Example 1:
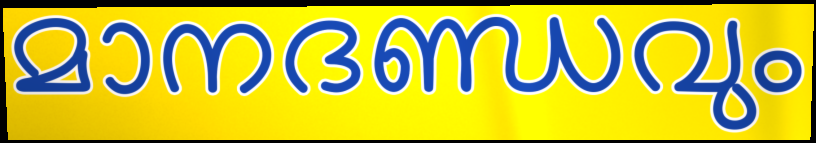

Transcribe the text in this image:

മാനദണ്ഡവും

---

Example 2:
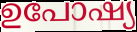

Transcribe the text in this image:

ഉപോഷ്യ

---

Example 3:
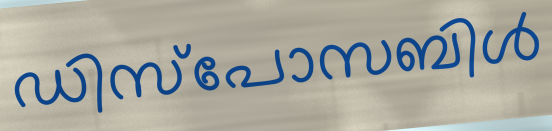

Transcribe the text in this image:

ഡിസ്പോസബിൾ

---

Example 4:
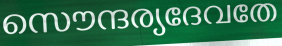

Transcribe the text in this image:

സൌന്ദര്യദേവതേ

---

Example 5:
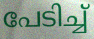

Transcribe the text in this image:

പേടിച്ച്